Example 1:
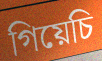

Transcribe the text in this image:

গিয়েচি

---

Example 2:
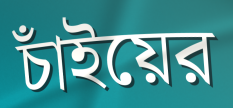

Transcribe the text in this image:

চাঁইয়ের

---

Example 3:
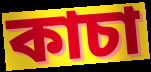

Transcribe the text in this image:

কাচা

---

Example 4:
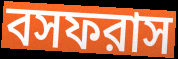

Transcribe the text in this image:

বসফরাস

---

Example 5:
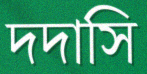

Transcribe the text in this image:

দদাসি